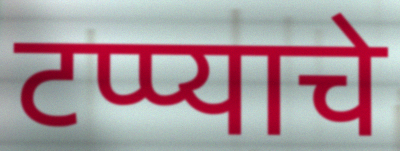
टप्प्याचे